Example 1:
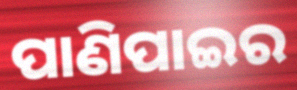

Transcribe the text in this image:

ପାଣିପାଇର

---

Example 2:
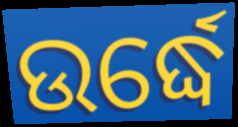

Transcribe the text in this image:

ଉର୍ଦ୍ଧେ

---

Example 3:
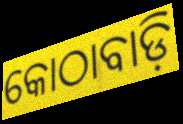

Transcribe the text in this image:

କୋଠାବାଡ଼ି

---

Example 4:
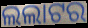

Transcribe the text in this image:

ଲଲାଟର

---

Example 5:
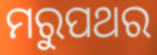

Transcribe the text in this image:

ମରୁପଥର